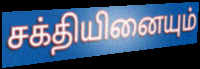
சக்தியினையும்